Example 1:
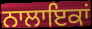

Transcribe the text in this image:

ਨਾਲਾਇਕਾਂ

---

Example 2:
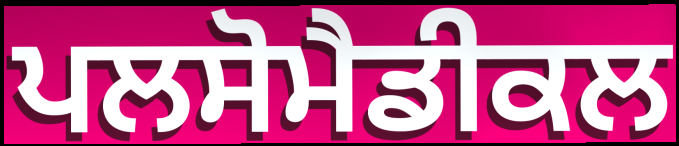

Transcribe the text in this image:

ਪਲਸੋਮੈਡੀਕਲ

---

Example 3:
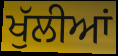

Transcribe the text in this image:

ਖੁੱਲੀਆਂ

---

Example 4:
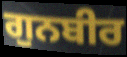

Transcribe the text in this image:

ਗੁਨਬੀਰ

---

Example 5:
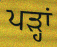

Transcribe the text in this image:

ਪੜ੍ਹਾਂ